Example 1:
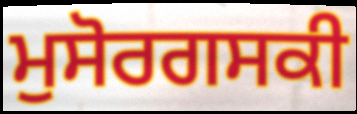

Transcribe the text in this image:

ਮੁਸੋਰਗਸਕੀ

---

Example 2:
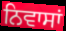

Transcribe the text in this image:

ਨਿਵਾਸਾਂ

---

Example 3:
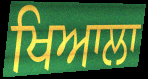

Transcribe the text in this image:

ਖਿਆਲਾ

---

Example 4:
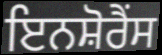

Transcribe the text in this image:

ਇਨਸ਼ੋਰੈਂਸ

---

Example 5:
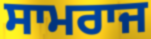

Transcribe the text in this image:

ਸਾਮਰਾਜ